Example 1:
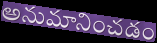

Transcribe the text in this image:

అనుమానించడం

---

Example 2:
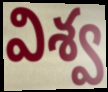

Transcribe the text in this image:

విశ్వ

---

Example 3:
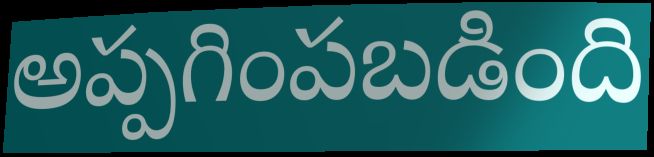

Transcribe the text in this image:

అప్పగింపబడింది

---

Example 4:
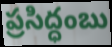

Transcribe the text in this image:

ప్రసిద్ధంబు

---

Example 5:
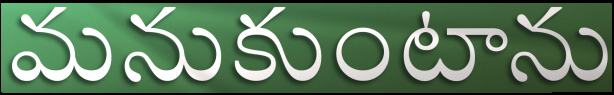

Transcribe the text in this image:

మనుకుంటాను